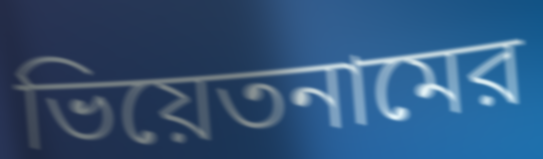
ভিয়েতনামের